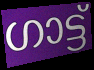
ഗാട്ട്